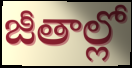
జీతాల్లో